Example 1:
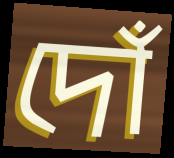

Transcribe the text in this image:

দোঁ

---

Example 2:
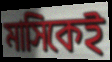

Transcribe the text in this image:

মাসিকেই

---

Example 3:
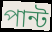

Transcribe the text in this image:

পান্ট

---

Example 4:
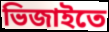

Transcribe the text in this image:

ভিজাইতে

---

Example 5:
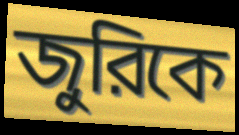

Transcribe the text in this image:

জুরিকে